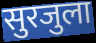
सुरजुला